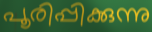
പൂരിപ്പിക്കുന്നു